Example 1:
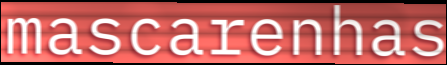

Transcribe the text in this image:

mascarenhas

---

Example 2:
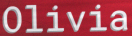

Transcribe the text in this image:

Olivia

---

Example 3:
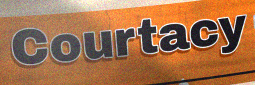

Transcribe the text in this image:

Courtacy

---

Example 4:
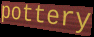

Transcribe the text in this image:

pottery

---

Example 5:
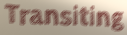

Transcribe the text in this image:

Transiting